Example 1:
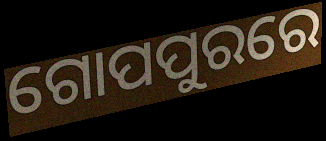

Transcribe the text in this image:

ଗୋପପୁରରେ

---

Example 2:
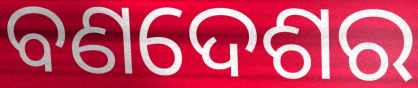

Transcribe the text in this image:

ବଣଦେଶର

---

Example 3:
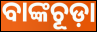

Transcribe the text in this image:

ବାଙ୍କଚୂଡ଼ା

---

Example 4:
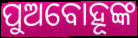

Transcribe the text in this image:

ପୁଅବୋହୂଙ୍କ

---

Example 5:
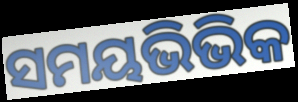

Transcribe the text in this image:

ସମୟଭିଭିକ